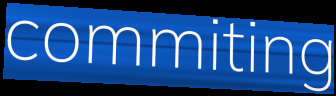
commiting